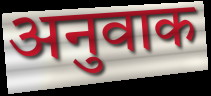
अनुवाक